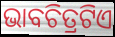
ଭାବଚିତ୍ରଟିଏ